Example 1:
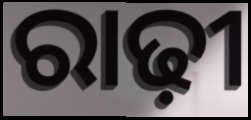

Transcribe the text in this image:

ରାଢ଼ୀ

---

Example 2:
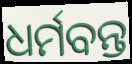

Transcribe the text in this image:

ଧର୍ମବନ୍ତ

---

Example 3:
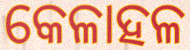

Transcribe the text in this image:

କେଳାହଳ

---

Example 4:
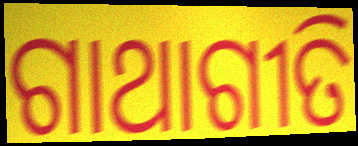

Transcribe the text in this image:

ଗାଥାଗୀତି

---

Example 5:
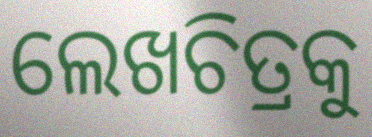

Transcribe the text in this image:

ଲେଖଚିତ୍ରକୁ